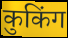
कुकिंग